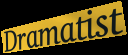
Dramatist